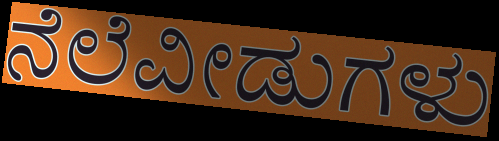
ನೆಲೆವೀಡುಗಳು